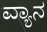
ವ್ಯಾನ